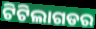
ଟିଟିଲାଗଡର